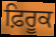
ਫ਼ਿਰੂਕ